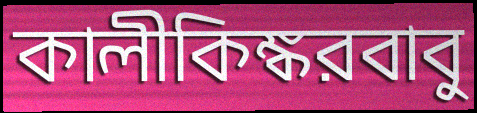
কালীকিঙ্করবাবু